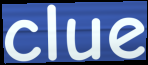
clue